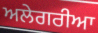
ਅਲੇਗਰੀਆ